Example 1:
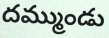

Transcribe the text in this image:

దమ్ముండు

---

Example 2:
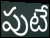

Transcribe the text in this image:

పుటే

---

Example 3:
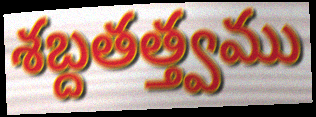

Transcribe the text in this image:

శబ్దతత్త్వము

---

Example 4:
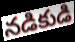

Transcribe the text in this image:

నడికుడి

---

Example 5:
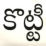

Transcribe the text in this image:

కొట్టీ